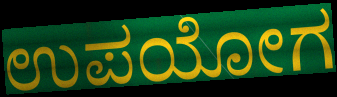
ಉಪಯೋಗ